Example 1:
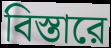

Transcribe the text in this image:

বিস্তারে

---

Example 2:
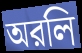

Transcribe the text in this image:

অরলি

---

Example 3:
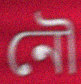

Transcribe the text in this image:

নৌ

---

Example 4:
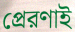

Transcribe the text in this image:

প্রেরণাই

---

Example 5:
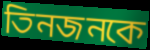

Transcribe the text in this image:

তিনজনকে